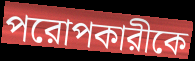
পরোপকারীকে